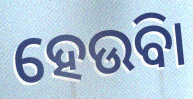
ହେଉିବା